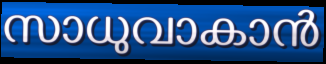
സാധുവാകാൻ